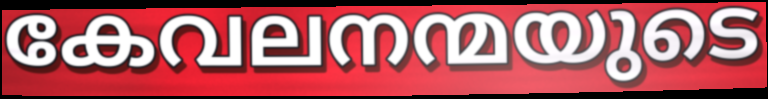
കേവലനന്മയുടെ